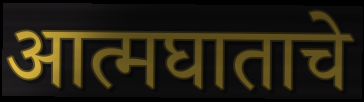
आत्मघाताचे